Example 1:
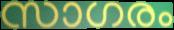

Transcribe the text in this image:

സാഗരം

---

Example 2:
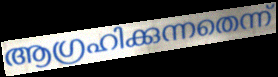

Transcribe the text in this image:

ആഗ്രഹിക്കുന്നതെന്ന്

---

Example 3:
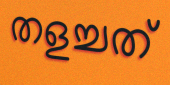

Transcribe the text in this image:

തളച്ചത്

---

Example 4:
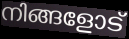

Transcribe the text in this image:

നിങ്ങളോട്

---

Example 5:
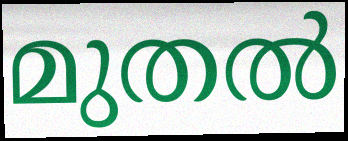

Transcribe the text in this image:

മുതൽ